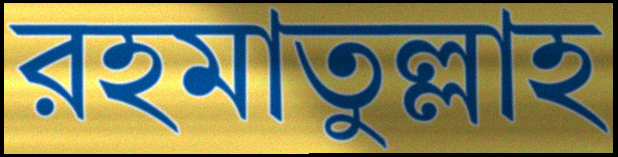
রহমাতুল্লাহ